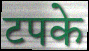
टपके